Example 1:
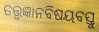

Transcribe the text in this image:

ତତ୍ତ୍ୱଜ୍ଞାନବିଷୟବସ୍ତୁ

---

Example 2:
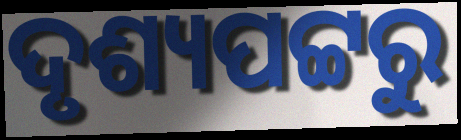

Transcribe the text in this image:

ଦୃଶ୍ୟପଟ୍ଟରୁ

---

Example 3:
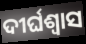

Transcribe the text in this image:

ଦୀର୍ଘଶ୍ବାସ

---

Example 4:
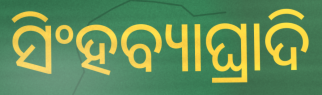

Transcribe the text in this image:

ସିଂହବ୍ୟାଘ୍ରାଦି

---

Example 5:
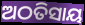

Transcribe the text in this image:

ଅଠତିସାୟ